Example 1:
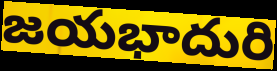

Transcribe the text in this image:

జయభాదురి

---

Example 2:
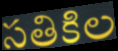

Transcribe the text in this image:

సతికిల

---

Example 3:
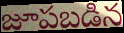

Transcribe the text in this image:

జూపబడిన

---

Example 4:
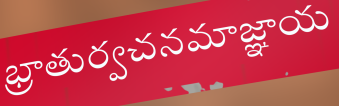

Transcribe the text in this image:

భ్రాతుర్వచనమాజ్ఞాయ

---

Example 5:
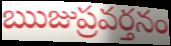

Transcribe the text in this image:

ఋజుప్రవర్తనం